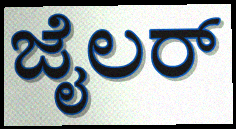
ಜೈಲರ್